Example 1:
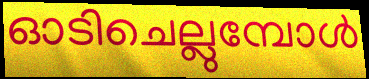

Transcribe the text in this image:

ഓടിചെല്ലുമ്പോൾ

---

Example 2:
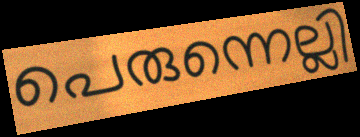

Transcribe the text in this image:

പെരുന്നെല്ലി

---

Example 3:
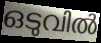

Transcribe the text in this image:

ഒടുവിൽ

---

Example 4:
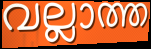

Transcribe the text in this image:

വല്ലാത്ത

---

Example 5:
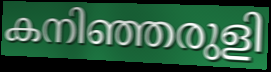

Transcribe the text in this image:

കനിഞ്ഞരുളി